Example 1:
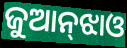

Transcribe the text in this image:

ଜୁଆନ୍‌ଝାଓ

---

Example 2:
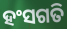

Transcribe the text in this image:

ହଂସଗତି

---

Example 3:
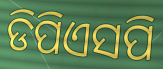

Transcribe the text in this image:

ଡିପିଏସପି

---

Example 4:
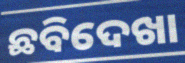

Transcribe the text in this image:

ଛବିଦେଖା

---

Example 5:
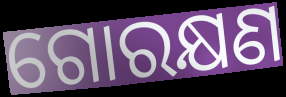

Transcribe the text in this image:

ଗୋରକ୍ଷଣ